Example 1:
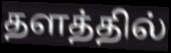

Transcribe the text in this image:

தளத்தில்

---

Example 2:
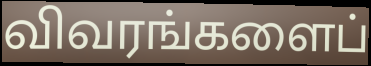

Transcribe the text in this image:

விவரங்களைப்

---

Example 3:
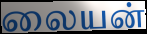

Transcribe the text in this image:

லையன்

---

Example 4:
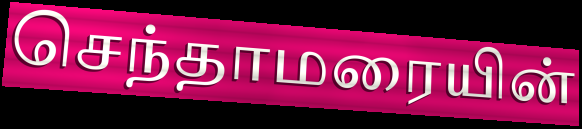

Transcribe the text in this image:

செந்தாமரையின்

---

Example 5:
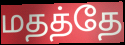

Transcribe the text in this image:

மதத்தே